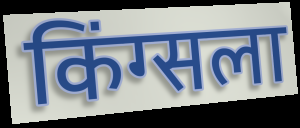
किंग्सला